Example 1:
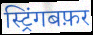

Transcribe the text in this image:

स्ट्रिंगबफ़र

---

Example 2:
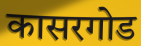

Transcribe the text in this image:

कासरगोड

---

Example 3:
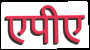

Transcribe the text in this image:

एपीए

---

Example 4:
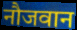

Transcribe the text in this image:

नौजवान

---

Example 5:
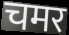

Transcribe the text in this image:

चमर